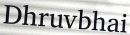
Dhruvbhai